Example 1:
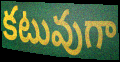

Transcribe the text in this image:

కటువుగా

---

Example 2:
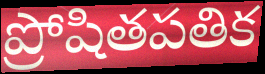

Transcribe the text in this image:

ప్రోషితపతిక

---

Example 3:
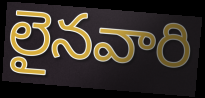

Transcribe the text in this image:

లైనవారి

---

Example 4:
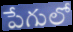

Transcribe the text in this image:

పేగులో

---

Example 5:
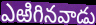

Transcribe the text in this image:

ఎఱిగినవాడు